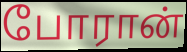
போரான்